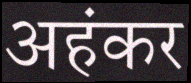
अहंकर